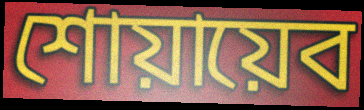
শোয়ায়েব